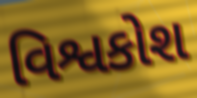
વિશ્વકોશ